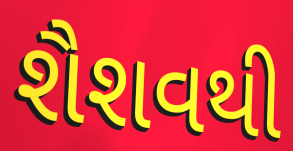
શૈશવથી